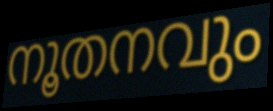
നൂതനവും